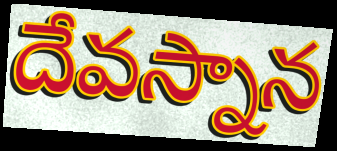
దేవస్నాన